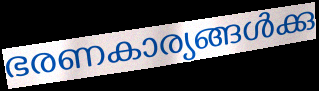
ഭരണകാര്യങ്ങൾക്കു